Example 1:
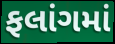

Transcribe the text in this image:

ફલાંગમાં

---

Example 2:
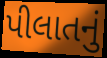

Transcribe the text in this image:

પીલાતનું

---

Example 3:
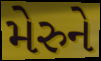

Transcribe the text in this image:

મેરુને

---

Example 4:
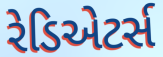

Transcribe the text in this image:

રેડિએટર્સ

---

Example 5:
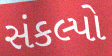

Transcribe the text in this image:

સંકલ્પો